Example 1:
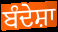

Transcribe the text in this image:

ਬੰਦੇਸ਼ਾ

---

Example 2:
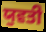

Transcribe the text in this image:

ਯੁਵਤੀ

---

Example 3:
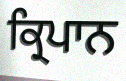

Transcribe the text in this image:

ਕ੍ਰਿਪਾਨ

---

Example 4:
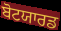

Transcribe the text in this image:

ਬੋਟਯਾਰਡ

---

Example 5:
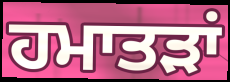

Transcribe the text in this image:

ਹਮਾਤੜਾਂ